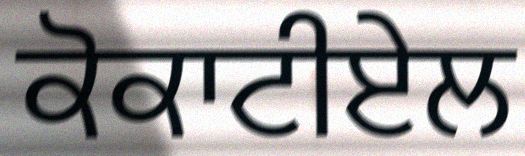
ਕੋਕਾਟੀਏਲ